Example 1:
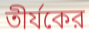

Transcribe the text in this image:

তীর্যকের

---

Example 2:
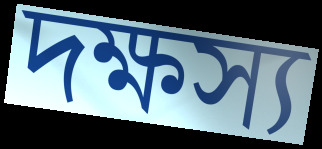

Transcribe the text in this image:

দক্ষস্য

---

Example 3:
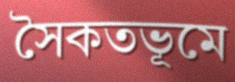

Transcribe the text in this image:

সৈকতভূমে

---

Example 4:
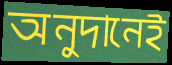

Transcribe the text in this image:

অনুদানেই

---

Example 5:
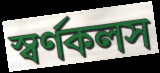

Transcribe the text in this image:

স্বর্ণকলস